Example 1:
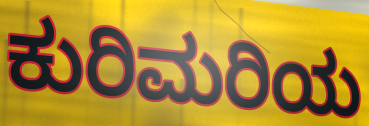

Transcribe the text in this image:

ಕುರಿಮರಿಯ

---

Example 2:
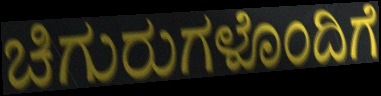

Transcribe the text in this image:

ಚಿಗುರುಗಳೊಂದಿಗೆ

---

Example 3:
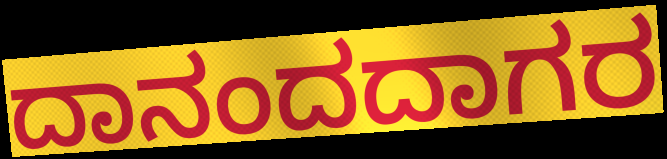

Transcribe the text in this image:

ದಾನಂದದಾಗರ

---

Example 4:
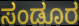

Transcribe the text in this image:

ಸಂಡೂರ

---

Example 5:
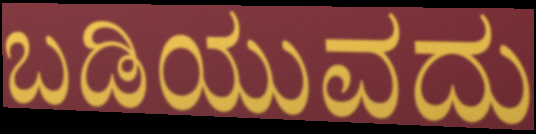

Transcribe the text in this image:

ಬಡಿಯುವದು